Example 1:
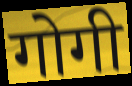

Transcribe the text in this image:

गोगी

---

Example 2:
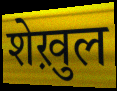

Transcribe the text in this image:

शेख़ुल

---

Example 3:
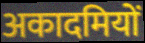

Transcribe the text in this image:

अकादमियों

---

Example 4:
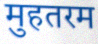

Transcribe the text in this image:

मुहतरम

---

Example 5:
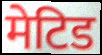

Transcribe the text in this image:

मेटिड